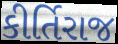
કીર્તિરાજ